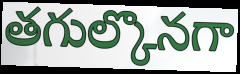
తగుల్కొనగా